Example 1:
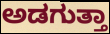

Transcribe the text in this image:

ಅಡಗುತ್ತಾ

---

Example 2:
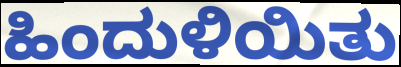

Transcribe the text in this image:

ಹಿಂದುಳಿಯಿತು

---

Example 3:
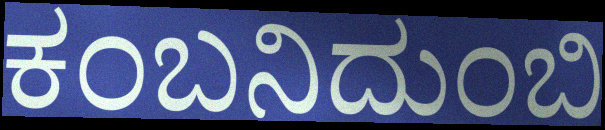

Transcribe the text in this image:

ಕಂಬನಿದುಂಬಿ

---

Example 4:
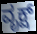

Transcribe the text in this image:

ವೃಕ್ಷ್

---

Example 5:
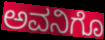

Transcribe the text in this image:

ಅವನಿಗೊ